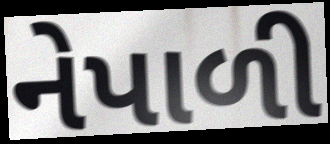
નેપાળી